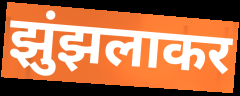
झुंझलाकर